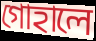
গোহালে